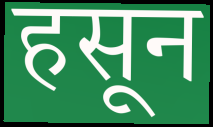
हसून